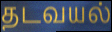
தடவயல்